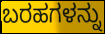
ಬರಹಗಳನ್ನು